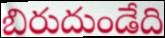
బిరుదుండేది